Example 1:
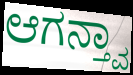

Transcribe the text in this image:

ಆಗನ್ತ್ವಾ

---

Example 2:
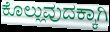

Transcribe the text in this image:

ಕೊಲ್ಲುವುದಕ್ಕಾಗಿ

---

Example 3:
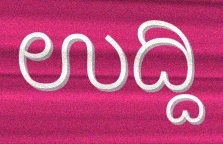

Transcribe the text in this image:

ಉದ್ದಿ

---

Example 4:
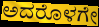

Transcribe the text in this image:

ಅದರೊಳಗೇ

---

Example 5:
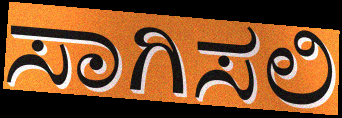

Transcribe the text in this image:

ಸಾಗಿಸಲಿ